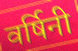
वर्षिनी